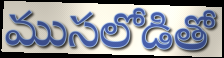
ముసలోడితో